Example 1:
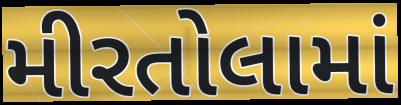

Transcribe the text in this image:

મીરતોલામાં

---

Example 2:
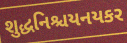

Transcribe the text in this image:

શુદ્ધનિશ્ચયનયકર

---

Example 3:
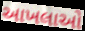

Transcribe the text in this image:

આખલાઓ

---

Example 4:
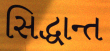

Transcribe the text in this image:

સિદ્ધાન્ત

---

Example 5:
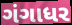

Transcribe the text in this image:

ગંગાધર